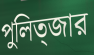
পুলিত্জার